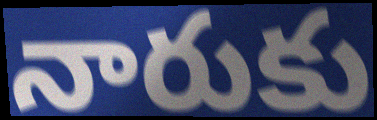
నారుకు